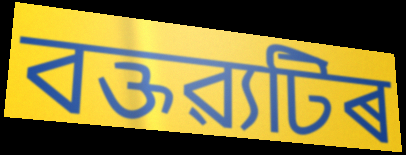
বক্তৱ্যটিৰ